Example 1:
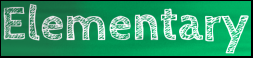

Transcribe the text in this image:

Elementary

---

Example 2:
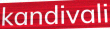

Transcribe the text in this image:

kandivali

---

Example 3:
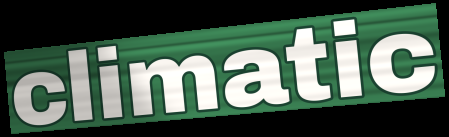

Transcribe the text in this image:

climatic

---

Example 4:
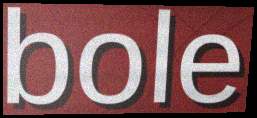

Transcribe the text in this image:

bole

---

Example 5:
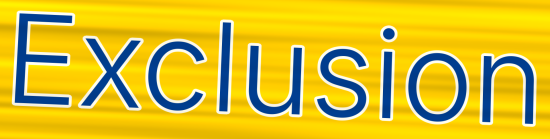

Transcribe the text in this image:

Exclusion